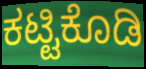
ಕಟ್ಟಿಕೊಡಿ